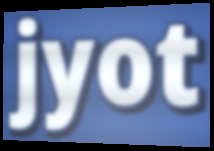
jyot